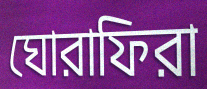
ঘোরাফিরা